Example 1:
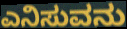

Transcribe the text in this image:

ಎನಿಸುವನು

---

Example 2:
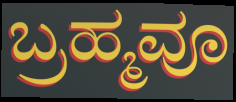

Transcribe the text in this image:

ಬ್ರಹ್ಮವೂ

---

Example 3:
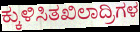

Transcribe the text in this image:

ಕ್ಕುಳಿಸಿತಖಿಲಾದ್ರಿಗಳ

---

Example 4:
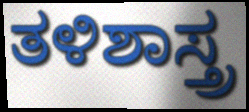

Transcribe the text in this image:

ತಳಿಶಾಸ್ತ್ರ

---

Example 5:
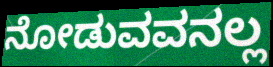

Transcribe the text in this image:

ನೋಡುವವನಲ್ಲ